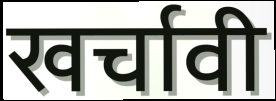
खर्चावी